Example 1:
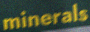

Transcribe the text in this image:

minerals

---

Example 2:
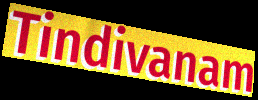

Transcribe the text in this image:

Tindivanam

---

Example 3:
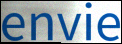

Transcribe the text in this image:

envie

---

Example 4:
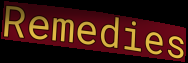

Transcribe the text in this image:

Remedies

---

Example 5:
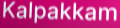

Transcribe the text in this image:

Kalpakkam